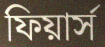
ফিয়ার্স